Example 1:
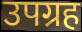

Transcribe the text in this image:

उपग्रह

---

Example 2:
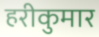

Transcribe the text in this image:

हरीकुमार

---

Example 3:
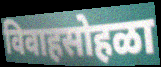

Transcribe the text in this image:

विवाहसोहळा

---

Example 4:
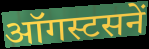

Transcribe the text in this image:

ऑगस्टसनें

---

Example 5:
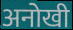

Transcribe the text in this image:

अनोखी